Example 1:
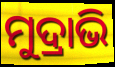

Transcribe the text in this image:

ମୁଦ୍ରାଭି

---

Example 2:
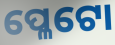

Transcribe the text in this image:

ପ୍ଳେଟୋ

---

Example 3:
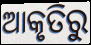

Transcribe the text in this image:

ଆକୃତିରୁ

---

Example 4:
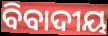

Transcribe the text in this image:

ବିବାଦୀୟ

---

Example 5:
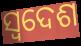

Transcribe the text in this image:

ସ୍ୱଦେଶ